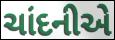
ચાંદનીએ